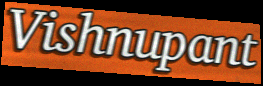
Vishnupant